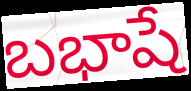
బభాషే